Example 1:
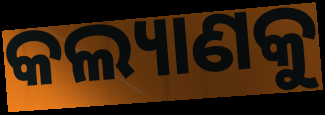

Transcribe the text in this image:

କଲ୍ୟାଣକୁ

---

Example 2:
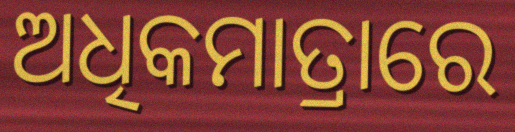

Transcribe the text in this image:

ଅଧିକମାତ୍ରାରେ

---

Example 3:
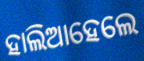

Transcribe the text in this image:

ହାଲିଆହେଲେ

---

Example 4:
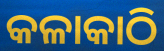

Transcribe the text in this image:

କଳାକାଠି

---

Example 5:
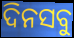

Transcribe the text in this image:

ଦିନସବୁ